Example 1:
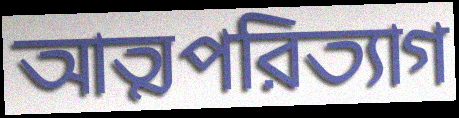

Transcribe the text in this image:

আত্মপরিত্যাগ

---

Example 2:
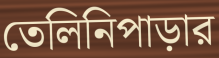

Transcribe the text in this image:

তেলিনিপাড়ার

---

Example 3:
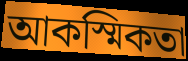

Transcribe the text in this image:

আকস্মিকতা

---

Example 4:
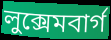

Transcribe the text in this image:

লুক্সেমবার্গ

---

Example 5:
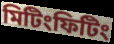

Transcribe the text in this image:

মিটিংফিটিং